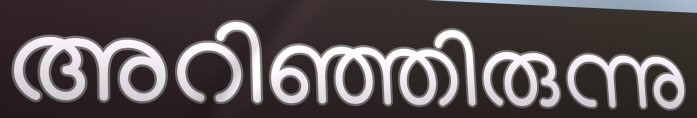
അറിഞ്ഞിരുന്നു